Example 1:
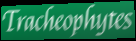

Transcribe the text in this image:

Tracheophytes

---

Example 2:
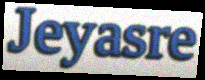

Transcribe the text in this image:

Jeyasre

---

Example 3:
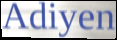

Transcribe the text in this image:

Adiyen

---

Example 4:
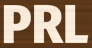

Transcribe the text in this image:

PRL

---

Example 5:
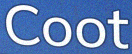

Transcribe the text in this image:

Coot